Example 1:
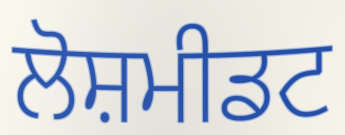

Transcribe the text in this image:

ਲੋਸ਼ਮੀਡਟ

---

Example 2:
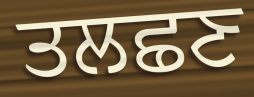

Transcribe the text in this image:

ਤਲਛਣ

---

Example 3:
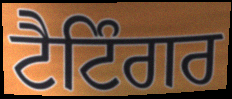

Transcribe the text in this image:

ਟੈਟਿੰਗਰ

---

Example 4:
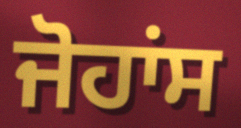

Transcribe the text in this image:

ਜੋਹਾਂਸ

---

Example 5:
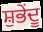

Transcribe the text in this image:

ਸ਼ੁਭੇਂਦੂ